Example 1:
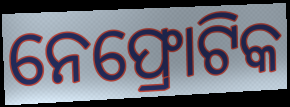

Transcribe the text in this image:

ନେଫ୍ରୋଟିକ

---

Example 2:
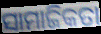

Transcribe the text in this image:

ସାମାଜିକତା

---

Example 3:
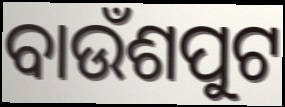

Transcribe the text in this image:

ବାଉଁଶପୁଟ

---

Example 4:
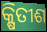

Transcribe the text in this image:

କ୍ଷିତୀଶ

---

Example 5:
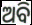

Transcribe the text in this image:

ଅବି